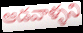
ఆడవాళ్ళని